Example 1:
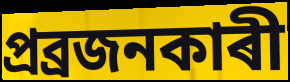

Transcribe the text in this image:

প্ৰব্ৰজনকাৰী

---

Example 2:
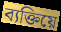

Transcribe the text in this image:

ব্যক্তিয়ে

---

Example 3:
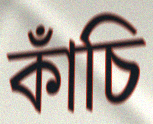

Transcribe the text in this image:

কাঁচি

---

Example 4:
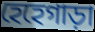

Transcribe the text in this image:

হেহেগাড়া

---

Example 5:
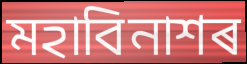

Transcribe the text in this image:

মহাবিনাশৰ